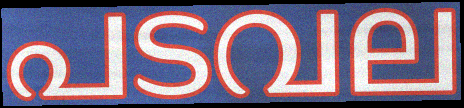
പടവല